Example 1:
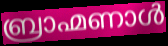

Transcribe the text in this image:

ബ്രാഹ്മണാൾ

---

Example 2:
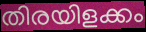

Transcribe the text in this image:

തിരയിളക്കം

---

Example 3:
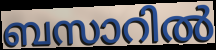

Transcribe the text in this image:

ബസാറിൽ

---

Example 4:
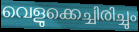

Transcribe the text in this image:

വെളുക്കെച്ചിരിച്ചും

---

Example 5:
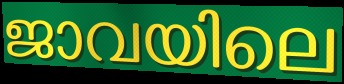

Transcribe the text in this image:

ജാവയിലെ